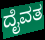
ದೈವತ